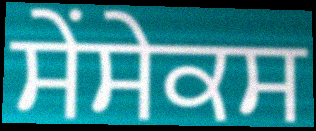
ਸੇਂਸੇਕਸ